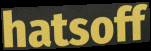
hatsoff